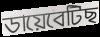
ডায়েবেটিছ